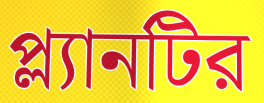
প্ল্যানটির